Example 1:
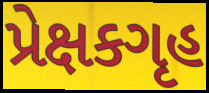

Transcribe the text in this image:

પ્રેક્ષકગૃહ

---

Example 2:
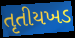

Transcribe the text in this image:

તૃતીયખડ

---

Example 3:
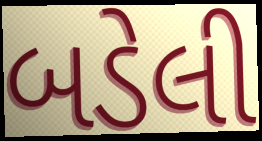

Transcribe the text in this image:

બડેલી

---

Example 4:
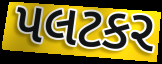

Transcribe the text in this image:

પલટકર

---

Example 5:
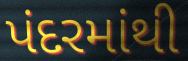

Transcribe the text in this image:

પંદરમાંથી